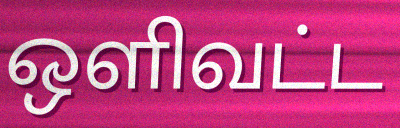
ஒளிவட்ட